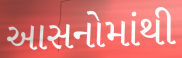
આસનોમાંથી